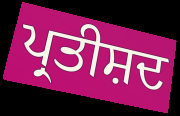
ਪ੍ਰਤੀਸ਼ਦ